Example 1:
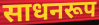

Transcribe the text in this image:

साधनरूप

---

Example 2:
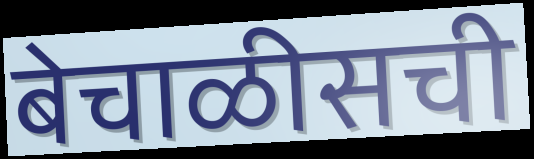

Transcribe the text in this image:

बेचाळीसची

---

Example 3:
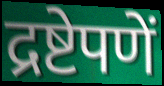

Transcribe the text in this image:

द्रष्टेपणें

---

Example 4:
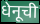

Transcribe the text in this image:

धेनूची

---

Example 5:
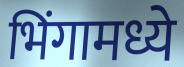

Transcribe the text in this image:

भिंगामध्ये